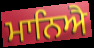
ਮਾਨਿਐ